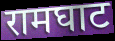
रामघाट